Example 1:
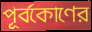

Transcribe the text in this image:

পূর্বকোণের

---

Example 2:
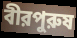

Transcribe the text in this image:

বীরপুরুষ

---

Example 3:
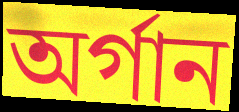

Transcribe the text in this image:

অর্গান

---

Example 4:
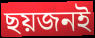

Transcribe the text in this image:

ছয়জনই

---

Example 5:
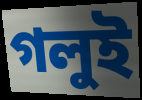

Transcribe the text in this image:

গলুই